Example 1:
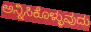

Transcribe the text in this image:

ಅನ್ನಿಸಿಕೊಳ್ಳುವುದು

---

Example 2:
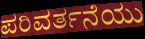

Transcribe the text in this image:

ಪರಿವರ್ತನೆಯು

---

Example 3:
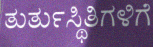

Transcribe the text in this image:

ತುರ್ತುಸ್ಥಿತಿಗಳಿಗೆ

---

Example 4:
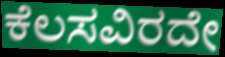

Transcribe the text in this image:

ಕೆಲಸವಿರದೇ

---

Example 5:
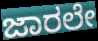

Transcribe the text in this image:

ಜಾರಲೇ